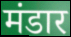
मंडार